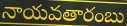
నాయవతారంబు